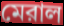
মেরাল